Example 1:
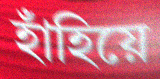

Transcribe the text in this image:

হাঁহিয়ে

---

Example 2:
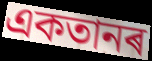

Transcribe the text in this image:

একতানৰ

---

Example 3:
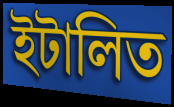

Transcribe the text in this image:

ইটালিত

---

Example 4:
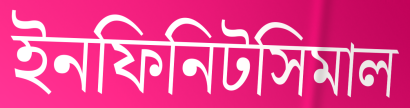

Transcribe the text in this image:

ইনফিনিটসিমাল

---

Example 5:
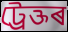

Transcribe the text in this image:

ট্ৰেক্তৰ